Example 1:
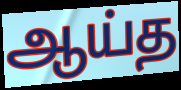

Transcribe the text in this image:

ஆய்த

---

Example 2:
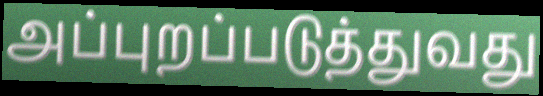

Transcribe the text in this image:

அப்புறப்படுத்துவது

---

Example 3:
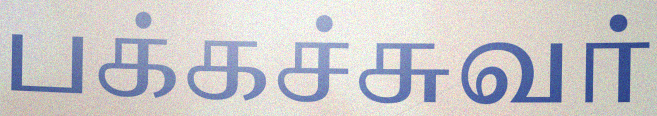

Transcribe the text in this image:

பக்கச்சுவர்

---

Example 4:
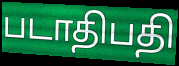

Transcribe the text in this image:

படாதிபதி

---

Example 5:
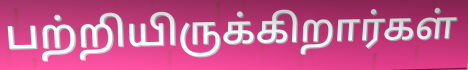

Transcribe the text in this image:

பற்றியிருக்கிறார்கள்